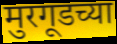
मुरगूडच्या